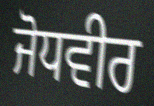
ਜੋਧਵੀਰ